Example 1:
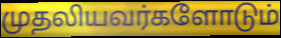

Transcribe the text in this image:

முதலியவர்களோடும்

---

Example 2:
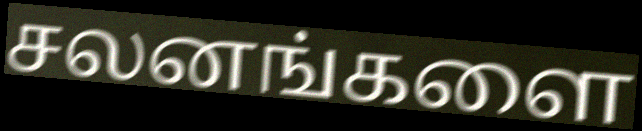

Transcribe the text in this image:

சலனங்களை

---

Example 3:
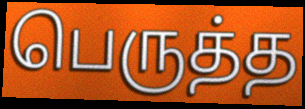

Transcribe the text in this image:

பெருத்த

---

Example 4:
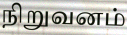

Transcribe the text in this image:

நிறுவனம்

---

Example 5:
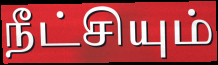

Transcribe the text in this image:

நீட்சியும்